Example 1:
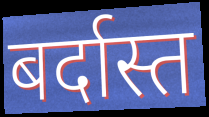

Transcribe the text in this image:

बर्दास्त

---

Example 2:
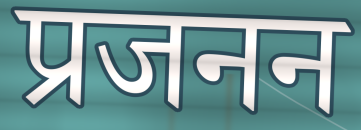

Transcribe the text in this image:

प्रजनन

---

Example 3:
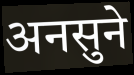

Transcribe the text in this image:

अनसुने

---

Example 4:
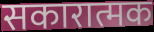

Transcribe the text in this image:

सकारात्‍मक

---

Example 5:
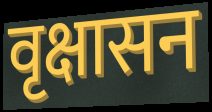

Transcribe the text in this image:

वृक्षासन